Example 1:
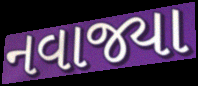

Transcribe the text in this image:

નવાજ્યા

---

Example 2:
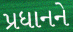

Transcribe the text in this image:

પ્રધાનને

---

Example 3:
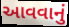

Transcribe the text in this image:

આવવાનું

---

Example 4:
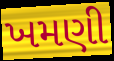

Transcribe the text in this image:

ખમણી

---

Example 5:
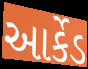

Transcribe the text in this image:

આર્કેડ